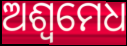
ଅଶ୍ୱମେଧ